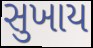
સુખાય